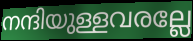
നന്ദിയുള്ളവരല്ലേ